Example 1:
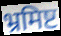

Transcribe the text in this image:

भ्रमिष्ट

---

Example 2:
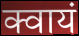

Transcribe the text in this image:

क्वायं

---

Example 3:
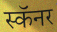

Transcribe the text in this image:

स्कॅनर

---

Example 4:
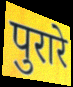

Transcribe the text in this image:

पुरारे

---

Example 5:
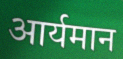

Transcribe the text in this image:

आर्यमान